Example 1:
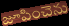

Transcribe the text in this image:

జూపించెను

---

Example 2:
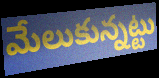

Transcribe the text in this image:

మేలుకున్నట్టు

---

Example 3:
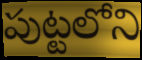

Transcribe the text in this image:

పుట్టలోని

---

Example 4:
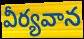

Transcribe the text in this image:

వీర్యవాన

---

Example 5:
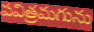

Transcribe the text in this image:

పవిత్రమగును